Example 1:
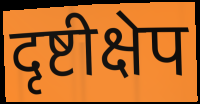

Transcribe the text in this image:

दृष्टीक्षेप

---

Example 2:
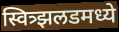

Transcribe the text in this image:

स्वित्र्झलडमध्ये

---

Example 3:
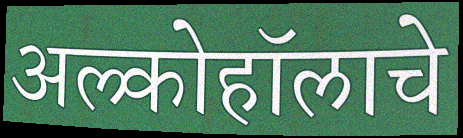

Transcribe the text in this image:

अल्कोहॉलाचे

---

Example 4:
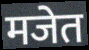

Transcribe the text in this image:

मजेत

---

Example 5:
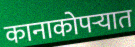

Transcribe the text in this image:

कानाकोपऱ्यात